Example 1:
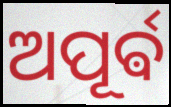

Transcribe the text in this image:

ଅପୂର୍ଵ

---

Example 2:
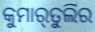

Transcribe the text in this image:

କୁମାର୍‌ତୁଲିର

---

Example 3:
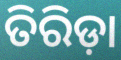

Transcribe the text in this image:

ତିରିଡ଼ା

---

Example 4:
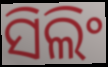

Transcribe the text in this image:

ସିଲିଂ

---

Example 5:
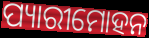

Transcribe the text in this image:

ପ୍ୟାରୀମୋହନ